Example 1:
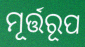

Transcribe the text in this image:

ମୂର୍ତ୍ତରୂପ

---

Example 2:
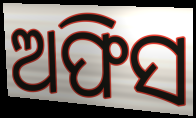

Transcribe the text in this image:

ଅଫିସ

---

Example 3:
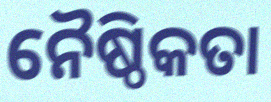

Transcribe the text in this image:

ନୈଷ୍ଠିକତା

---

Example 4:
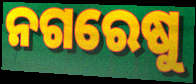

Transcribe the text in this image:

ନଗରେଷୁ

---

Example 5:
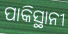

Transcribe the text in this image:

ପାକିସ୍ଥାନୀ